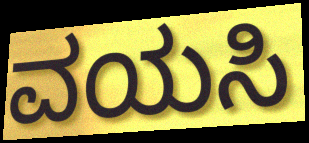
ವಯಸಿ